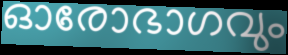
ഓരോഭാഗവും